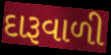
દારૂવાળી